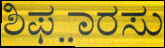
ಶಿಫ಼ಾರಸು